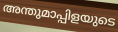
അന്തുമാപ്പിളയുടെ